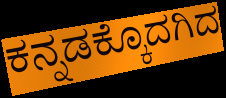
ಕನ್ನಡಕ್ಕೊದಗಿದ